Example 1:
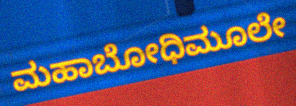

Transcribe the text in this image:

ಮಹಾಬೋಧಿಮೂಲೇ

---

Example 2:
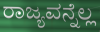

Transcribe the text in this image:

ರಾಜ್ಯವನ್ನೆಲ್ಲ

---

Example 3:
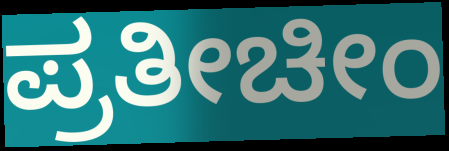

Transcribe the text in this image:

ಪ್ರತೀಚೀಂ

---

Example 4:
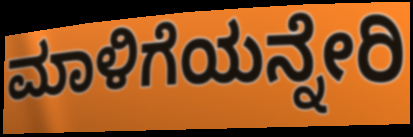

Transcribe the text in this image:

ಮಾಳಿಗೆಯನ್ನೇರಿ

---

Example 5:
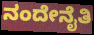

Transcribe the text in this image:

ನಂದೇನೈತಿ